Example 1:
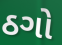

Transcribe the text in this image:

ઠગો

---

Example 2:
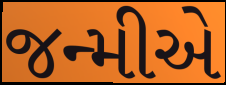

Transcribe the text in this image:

જન્મીએ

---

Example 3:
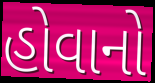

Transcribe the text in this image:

હોવાનો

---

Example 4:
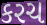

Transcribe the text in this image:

કરચ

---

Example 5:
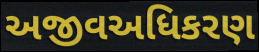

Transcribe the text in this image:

અજીવઅધિકરણ